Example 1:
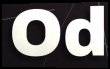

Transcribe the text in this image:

Od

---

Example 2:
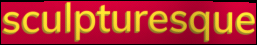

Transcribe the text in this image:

sculpturesque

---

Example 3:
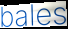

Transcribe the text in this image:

bales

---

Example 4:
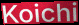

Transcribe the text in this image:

Koichi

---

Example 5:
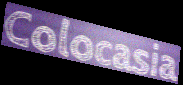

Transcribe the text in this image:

Colocasia